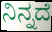
ನಿನ್ನದೆ